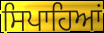
ਸਿਪਾਹਿਆਂ